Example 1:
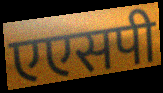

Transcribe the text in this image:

एएसपी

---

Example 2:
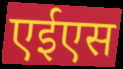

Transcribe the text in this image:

एईएस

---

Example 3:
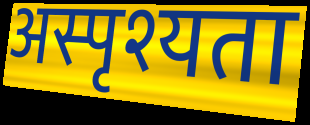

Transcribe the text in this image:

अस्पृश्यता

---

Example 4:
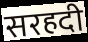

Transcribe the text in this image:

सरहदी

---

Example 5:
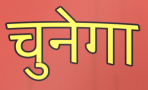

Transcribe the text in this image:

चुनेगा